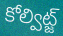
కోల్విట్జ్